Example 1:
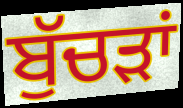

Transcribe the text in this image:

ਬੁੱਚੜਾਂ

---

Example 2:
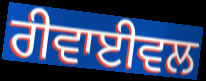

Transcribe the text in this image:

ਰੀਵਾਈਵਲ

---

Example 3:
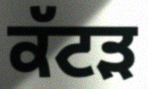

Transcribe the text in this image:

ਕੱਟੜ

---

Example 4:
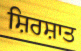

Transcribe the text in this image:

ਸ਼ਿਰਸ਼ਾਤ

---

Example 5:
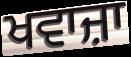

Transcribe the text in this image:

ਖਵਾਜ਼ਾ